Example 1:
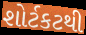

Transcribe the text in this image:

શોર્ટકટથી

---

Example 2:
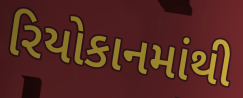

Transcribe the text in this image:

રિયોકાનમાંથી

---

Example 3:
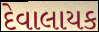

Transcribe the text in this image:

દેવાલાયક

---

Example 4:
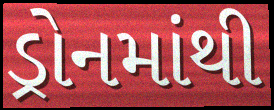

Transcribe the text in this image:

ડ્રોનમાંથી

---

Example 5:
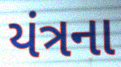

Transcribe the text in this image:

યંત્રના